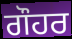
ਗੌਹਰ